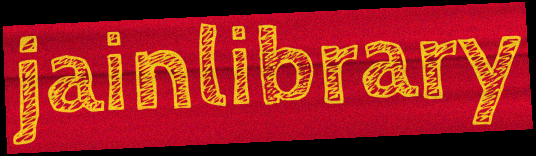
jainlibrary